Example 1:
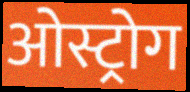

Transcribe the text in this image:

ओस्ट्रोग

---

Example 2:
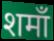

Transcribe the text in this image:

शमाँ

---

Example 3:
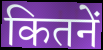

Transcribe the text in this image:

कितनें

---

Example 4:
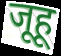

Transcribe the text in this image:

जूहू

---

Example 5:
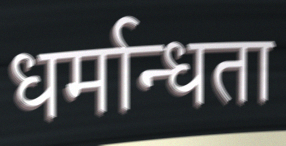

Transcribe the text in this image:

धर्मान्धता